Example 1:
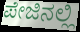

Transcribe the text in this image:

ಪೇಜಿನಲ್ಲಿ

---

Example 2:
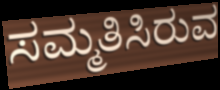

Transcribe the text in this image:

ಸಮ್ಮತಿಸಿರುವ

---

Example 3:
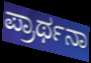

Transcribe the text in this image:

ಪ್ರಾರ್ಥನಾ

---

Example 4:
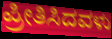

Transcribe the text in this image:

ಪ್ರೀತಿಸಿದವಳು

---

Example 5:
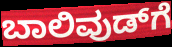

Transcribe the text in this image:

ಬಾಲಿವುಡ್‌ಗೆ